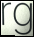
rg